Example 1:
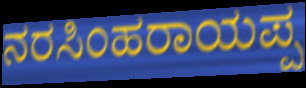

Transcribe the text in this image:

ನರಸಿಂಹರಾಯಪ್ಪ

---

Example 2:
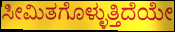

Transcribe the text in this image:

ಸೀಮಿತಗೊಳ್ಳುತ್ತಿದೆಯೇ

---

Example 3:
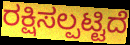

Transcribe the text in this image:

ರಕ್ಷಿಸಲ್ಪಟ್ಟಿದೆ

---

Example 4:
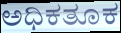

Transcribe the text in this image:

ಅಧಿಕತೂಕ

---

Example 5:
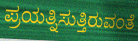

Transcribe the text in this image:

ಪ್ರಯತ್ನಿಸುತ್ತಿರುವಂತೆ